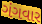
ગંગવાર